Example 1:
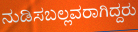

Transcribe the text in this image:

ನುಡಿಸಬಲ್ಲವರಾಗಿದ್ದರು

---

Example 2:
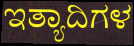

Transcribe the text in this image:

ಇತ್ಯಾದಿಗಳ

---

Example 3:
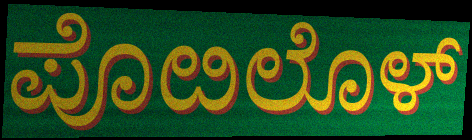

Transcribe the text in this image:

ಪೊೞಲೊಳ್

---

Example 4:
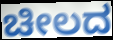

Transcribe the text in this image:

ಚೀಲದ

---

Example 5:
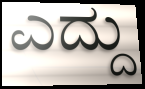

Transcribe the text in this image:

ಎದ್ದು